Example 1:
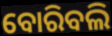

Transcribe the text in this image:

ବୋରିବଲି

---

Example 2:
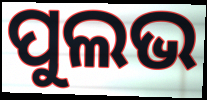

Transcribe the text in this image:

ପୁଲଭ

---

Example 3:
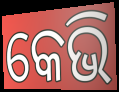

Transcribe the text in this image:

କେଭି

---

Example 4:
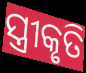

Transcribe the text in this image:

ସ୍ତ୍ରୀକୃତି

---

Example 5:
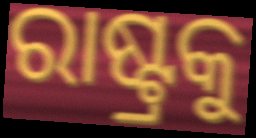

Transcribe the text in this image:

ରାଷ୍ଟ୍ରକୁ